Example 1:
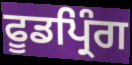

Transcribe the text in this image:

ਫੂਡਪ੍ਰਿੰਗ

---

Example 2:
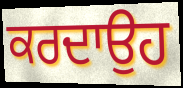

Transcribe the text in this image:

ਕਰਦਾਉਹ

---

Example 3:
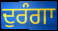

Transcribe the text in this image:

ਦੁਰੰਗਾ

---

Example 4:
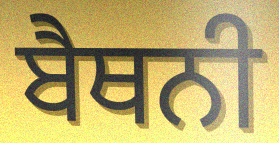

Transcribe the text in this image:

ਬੈਥਨੀ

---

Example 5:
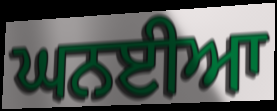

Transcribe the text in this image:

ਘਨਈਆ